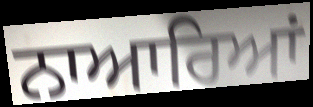
ਨਾਆਰਿਆਂ